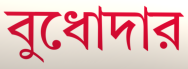
বুধোদার